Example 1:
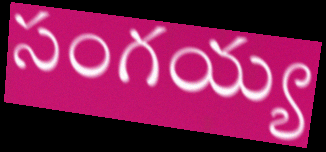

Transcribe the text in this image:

సంగయ్య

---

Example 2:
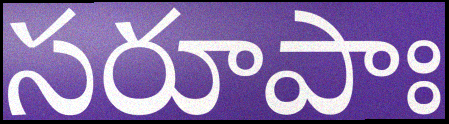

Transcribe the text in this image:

సరూపాః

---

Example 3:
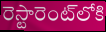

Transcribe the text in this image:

రెస్టారెంట్‌లోకి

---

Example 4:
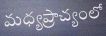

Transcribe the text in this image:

మధ్యప్రాచ్యంలో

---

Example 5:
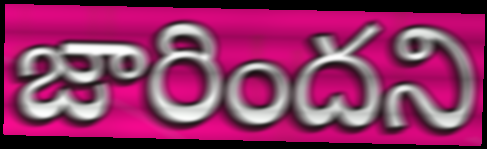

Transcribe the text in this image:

జారిందని